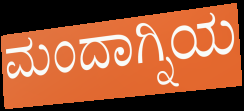
ಮಂದಾಗ್ನಿಯ